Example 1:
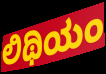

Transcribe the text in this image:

ಲಿಥಿಯಂ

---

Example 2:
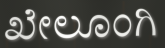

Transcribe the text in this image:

ಖೇಲೂಂಗಿ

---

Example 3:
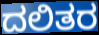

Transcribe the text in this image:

ದಲಿತರ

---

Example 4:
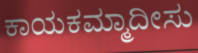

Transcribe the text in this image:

ಕಾಯಕಮ್ಮಾದೀಸು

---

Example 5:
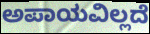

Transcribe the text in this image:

ಅಪಾಯವಿಲ್ಲದೆ